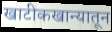
खाटीकखान्यातून